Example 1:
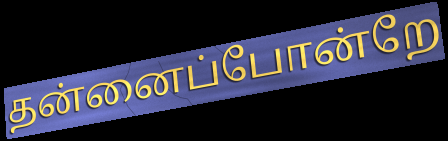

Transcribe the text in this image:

தன்னைப்போன்றே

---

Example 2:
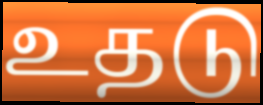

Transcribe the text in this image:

உதடு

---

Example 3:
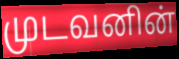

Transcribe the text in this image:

முடவனின்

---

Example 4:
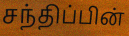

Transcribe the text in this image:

சந்திப்பின்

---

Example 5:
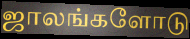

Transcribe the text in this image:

ஜாலங்களோடு